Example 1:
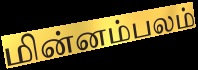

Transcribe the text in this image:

மின்னம்பலம்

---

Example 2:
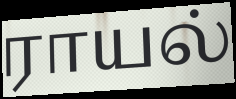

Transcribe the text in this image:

ராயல்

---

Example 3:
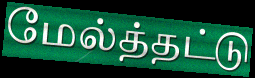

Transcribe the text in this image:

மேல்த்தட்டு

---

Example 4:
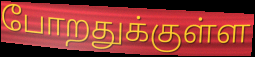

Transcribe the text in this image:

போறதுக்குள்ள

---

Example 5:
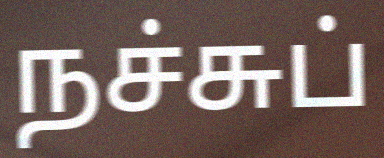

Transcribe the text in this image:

நச்சுப்